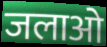
जलाओ